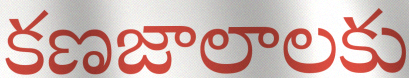
కణజాలాలకు